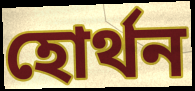
হোর্থন